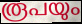
രൂപയും